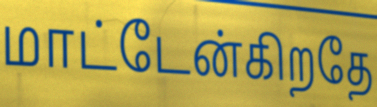
மாட்டேன்கிறதே